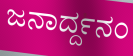
ಜನಾರ್ದ್ದನಂ